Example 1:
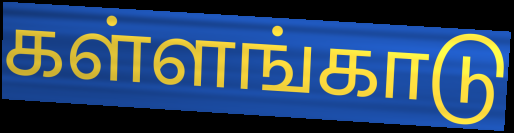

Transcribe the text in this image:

கள்ளங்காடு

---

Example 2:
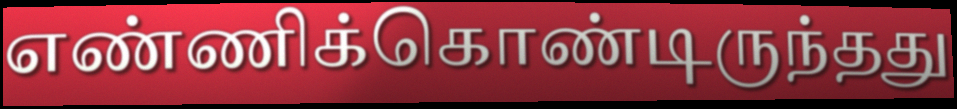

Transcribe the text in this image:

எண்ணிக்கொண்டிருந்தது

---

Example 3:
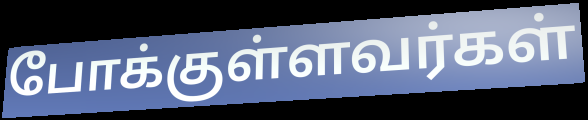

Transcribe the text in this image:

போக்குள்ளவர்கள்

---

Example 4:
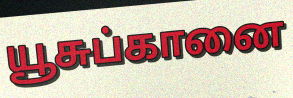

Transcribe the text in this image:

யூசுப்கானை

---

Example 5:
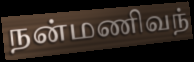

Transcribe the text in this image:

நன்மணிவந்